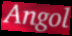
Angol